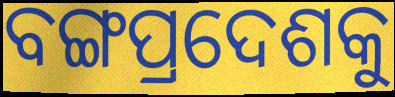
ବଙ୍ଗପ୍ରଦେଶକୁ